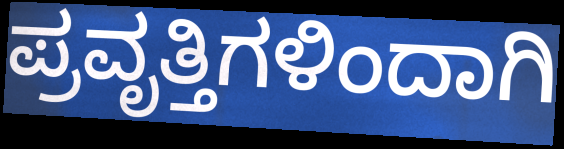
ಪ್ರವೃತ್ತಿಗಳಿಂದಾಗಿ